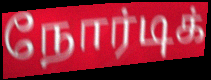
நோர்டிக்